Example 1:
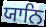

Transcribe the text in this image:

ਯਾਨਿ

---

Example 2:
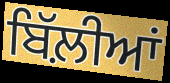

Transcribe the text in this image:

ਬਿੱਲ਼ੀਆਂ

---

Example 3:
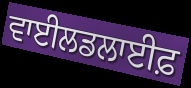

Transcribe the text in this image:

ਵਾਈਲਡਲਾਈਫ਼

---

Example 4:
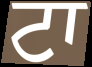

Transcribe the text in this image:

ਟਾ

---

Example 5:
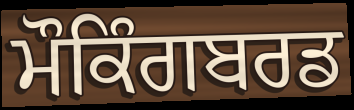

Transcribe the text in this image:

ਮੌਕਿੰਗਬਰਡ